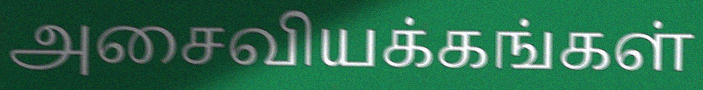
அசைவியக்கங்கள்